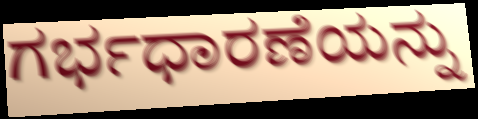
ಗರ್ಭಧಾರಣೆಯನ್ನು